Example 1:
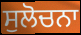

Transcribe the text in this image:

ਸੁਲੋਚਨਾ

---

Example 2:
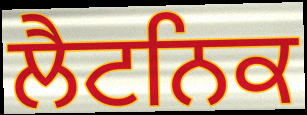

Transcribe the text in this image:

ਲੈਟਨਿਕ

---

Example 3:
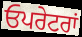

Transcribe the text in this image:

ਓਪਰੇਟਰਾਂ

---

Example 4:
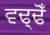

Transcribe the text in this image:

ਵਢ੍ਢੋਁ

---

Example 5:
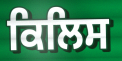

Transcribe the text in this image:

ਕਿਲਿਸ